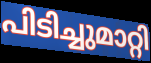
പിടിച്ചുമാറ്റി